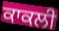
ਕਾਕਲੀ